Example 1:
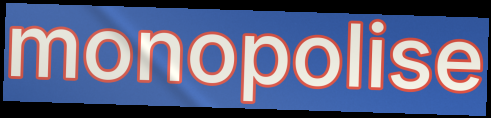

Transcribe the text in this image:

monopolise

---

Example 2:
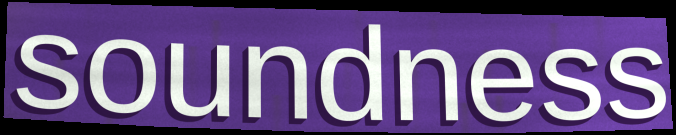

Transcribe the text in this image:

soundness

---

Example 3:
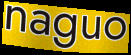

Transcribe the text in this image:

naguo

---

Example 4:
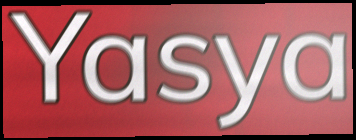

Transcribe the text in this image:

Yasya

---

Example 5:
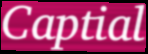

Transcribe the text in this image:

Captial